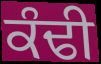
ਕੰਢੀ